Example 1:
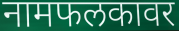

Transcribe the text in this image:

नामफलकावर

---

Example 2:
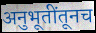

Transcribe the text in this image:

अनुभूतींतूनच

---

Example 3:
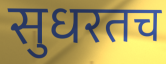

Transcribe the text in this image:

सुधरतच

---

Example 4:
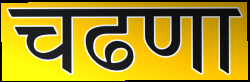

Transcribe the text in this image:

चढणा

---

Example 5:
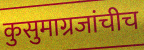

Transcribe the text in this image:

कुसुमाग्रजांचीच